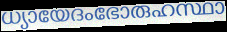
ധ്യായേദംഭോരുഹസ്ഥാ